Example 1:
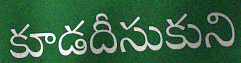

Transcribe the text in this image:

కూడదీసుకుని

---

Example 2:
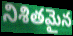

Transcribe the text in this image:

నిశితమైన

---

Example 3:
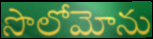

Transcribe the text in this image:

సొలోమోను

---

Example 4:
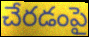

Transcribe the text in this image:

చేరడంపై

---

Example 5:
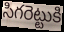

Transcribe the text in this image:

సిగరెట్టుకి